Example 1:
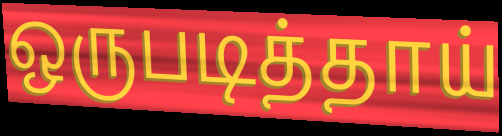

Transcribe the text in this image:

ஒருபடித்தாய்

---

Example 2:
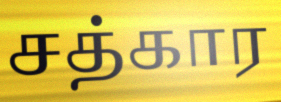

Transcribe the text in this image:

சத்கார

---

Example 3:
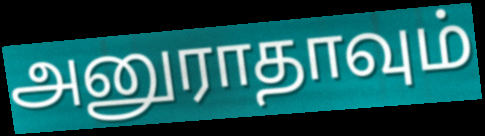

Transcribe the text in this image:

அனுராதாவும்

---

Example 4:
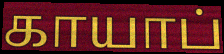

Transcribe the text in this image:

காயாப்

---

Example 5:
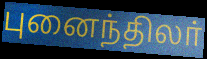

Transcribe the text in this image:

புனைந்திலர்